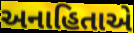
અનાહિતાએ